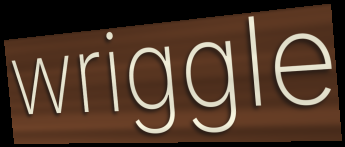
wriggle